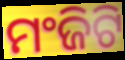
ମଂଜିଟି